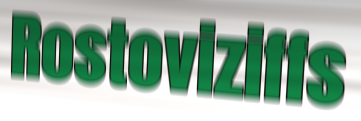
Rostoviziffs